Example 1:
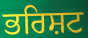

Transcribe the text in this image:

ਭਰਿਸ਼ਟ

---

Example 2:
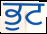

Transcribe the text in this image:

ਭੁਟ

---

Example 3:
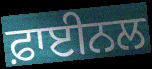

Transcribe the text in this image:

ਫ਼ਾਈਨਲ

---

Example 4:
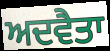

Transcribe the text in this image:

ਅਦਵੈਤਾ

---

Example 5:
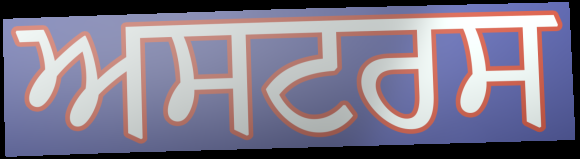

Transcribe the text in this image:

ਅਸਟਰਸ